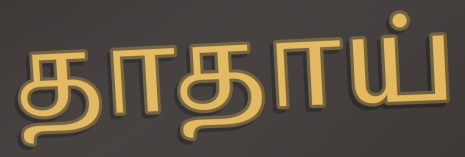
தாதாய்